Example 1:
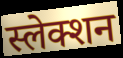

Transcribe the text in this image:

स्लेक्शन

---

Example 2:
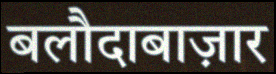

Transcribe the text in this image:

बलौदाबाज़ार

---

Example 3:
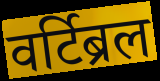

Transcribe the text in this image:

वर्टिब्रल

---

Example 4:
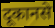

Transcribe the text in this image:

दूकानसे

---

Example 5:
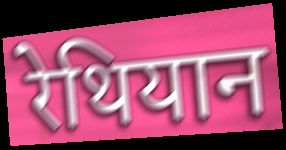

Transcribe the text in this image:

रेथियान